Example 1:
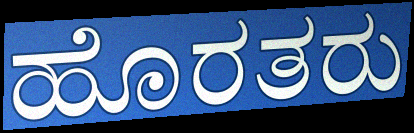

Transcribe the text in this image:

ಹೊರತರು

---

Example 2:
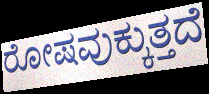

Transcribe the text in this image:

ರೋಷವುಕ್ಕುತ್ತದೆ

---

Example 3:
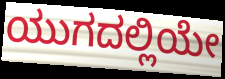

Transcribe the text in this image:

ಯುಗದಲ್ಲಿಯೇ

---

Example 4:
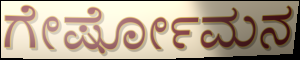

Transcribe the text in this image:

ಗೇರ್ಷೋಮನ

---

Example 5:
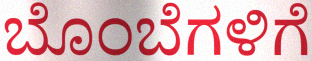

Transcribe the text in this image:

ಬೊಂಬೆಗಳಿಗೆ